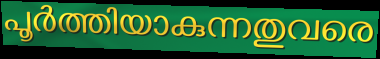
പൂർത്തിയാകുന്നതുവരെ